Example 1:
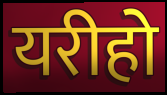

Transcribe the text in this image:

यरीहो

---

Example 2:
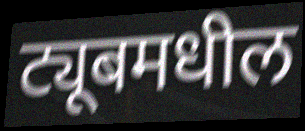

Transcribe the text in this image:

ट्यूबमधील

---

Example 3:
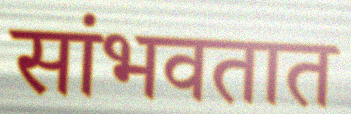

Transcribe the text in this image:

सांभवतात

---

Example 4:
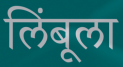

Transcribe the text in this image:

लिंबूला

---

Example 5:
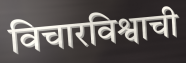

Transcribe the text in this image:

विचारविश्वाची